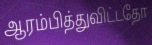
ஆரம்பித்துவிட்டதோ